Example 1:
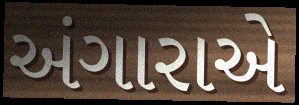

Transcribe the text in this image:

અંગારાએ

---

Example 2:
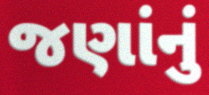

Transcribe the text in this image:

જણાંનું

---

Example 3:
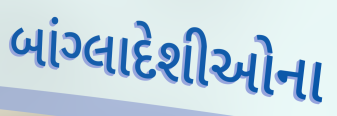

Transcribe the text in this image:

બાંગ્લાદેશીઓના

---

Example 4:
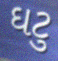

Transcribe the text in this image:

ઘટુ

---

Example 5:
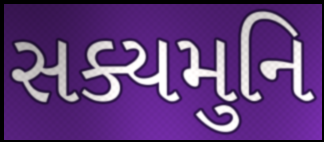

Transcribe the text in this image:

સક્યમુનિ